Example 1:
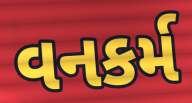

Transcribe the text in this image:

વનકર્મ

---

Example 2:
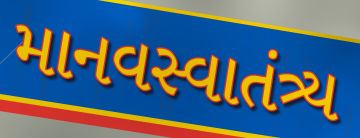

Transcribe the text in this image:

માનવસ્વાતંત્ર્ય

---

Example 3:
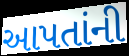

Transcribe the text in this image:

આપતાંની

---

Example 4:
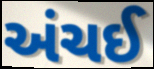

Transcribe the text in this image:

અંચઈ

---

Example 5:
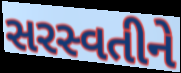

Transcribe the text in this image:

સરસ્વતીને